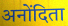
अनोंदिता